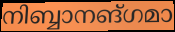
നിബ്ബാനങ്ഗമാ